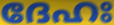
ദേഹഃ